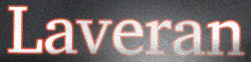
Laveran